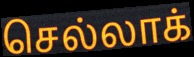
செல்லாக்